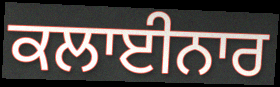
ਕਲਾਈਨਾਰ